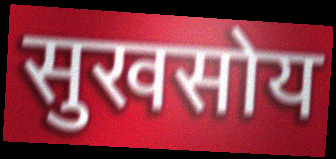
सुखसोय